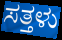
ಸತ್ತಳು